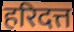
हरिदत्त